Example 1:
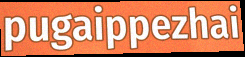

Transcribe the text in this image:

pugaippezhai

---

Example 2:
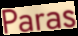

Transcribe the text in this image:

Paras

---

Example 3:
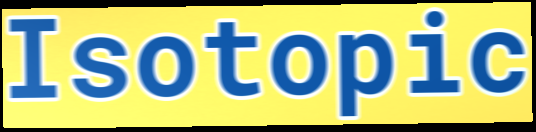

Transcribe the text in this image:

Isotopic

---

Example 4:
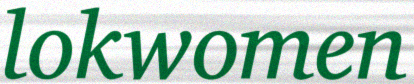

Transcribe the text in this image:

lokwomen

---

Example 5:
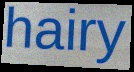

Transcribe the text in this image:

hairy